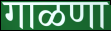
गाळणा